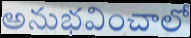
అనుభవించాలో